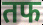
तफ